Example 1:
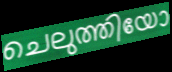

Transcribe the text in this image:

ചെലുത്തിയോ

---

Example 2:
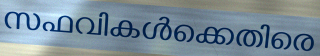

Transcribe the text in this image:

സഫവികൾക്കെതിരെ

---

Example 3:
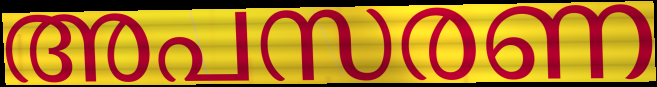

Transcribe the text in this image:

അപസരണ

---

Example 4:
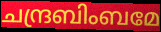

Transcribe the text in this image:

ചന്ദ്രബിംബമേ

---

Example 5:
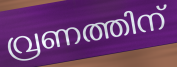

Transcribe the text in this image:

വ്രണത്തിന്